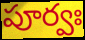
పూర్వః